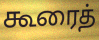
கூரைத்